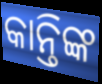
କାନ୍ତିଙ୍କ